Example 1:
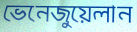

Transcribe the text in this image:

ভেনেজুয়েলান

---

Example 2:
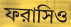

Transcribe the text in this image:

ফরাসিও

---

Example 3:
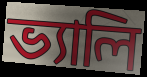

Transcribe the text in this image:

ভ্যালি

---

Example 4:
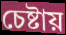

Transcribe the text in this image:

চেষ্টায়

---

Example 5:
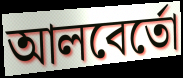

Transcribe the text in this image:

আলবের্তো